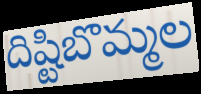
దిష్టిబొమ్మల